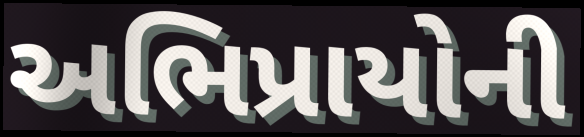
અભિપ્રાયોની